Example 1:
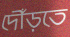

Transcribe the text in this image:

দৌঁড়তে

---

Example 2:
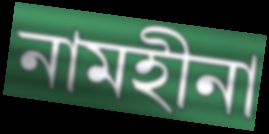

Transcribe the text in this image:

নামহীনা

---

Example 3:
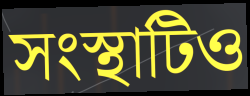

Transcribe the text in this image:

সংস্থাটিও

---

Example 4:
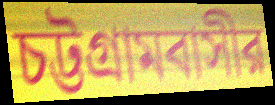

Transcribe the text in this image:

চট্টগ্রামবাসীর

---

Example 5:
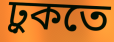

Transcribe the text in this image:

ঢ়ুকতে